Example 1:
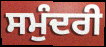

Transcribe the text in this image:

ਸਮੁੰਦਰੀ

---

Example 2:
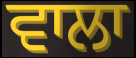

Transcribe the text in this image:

ਵਾਲਾ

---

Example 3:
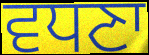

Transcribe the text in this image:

ਵਧਣਾ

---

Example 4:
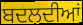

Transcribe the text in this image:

ਬਦਲਦੀਆਂ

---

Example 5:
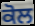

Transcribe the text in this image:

ਕੋਲ